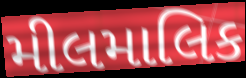
મીલમાલિક